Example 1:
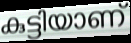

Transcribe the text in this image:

കുട്ടിയാണ്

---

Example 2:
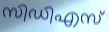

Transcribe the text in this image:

സിഡിഎസ്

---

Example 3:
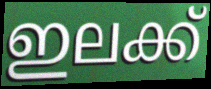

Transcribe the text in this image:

ഇലക്ക്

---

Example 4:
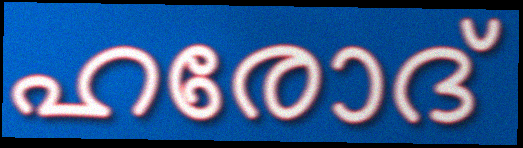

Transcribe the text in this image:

ഹരോദ്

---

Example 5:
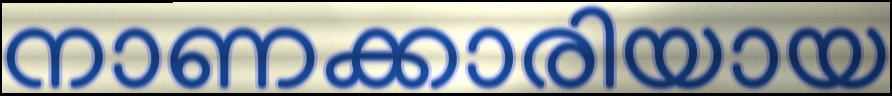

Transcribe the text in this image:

നാണക്കാരിയായ